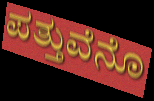
ಪತ್ತುವೆನೊ